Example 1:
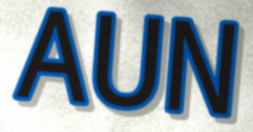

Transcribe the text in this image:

AUN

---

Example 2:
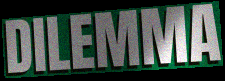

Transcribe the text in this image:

DILEMMA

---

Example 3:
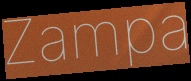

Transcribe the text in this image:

Zampa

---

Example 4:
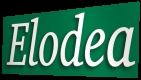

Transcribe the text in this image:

Elodea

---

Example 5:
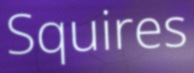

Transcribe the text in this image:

Squires